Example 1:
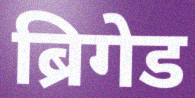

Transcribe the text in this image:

ब्रिगेड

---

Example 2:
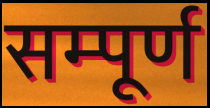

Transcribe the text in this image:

सम्पूर्ण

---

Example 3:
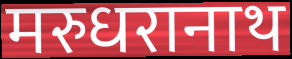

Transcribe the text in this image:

मरुधरानाथ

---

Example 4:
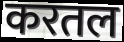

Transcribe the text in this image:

करतल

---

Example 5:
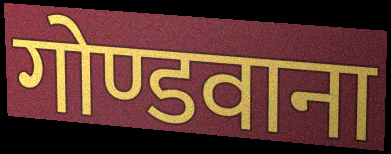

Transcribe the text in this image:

गोण्डवाना